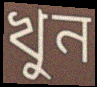
খুন